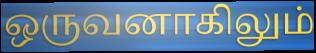
ஒருவனாகிலும்